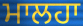
ਮਾਲਹਾ